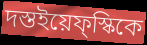
দস্তইয়েফ্স্কিকে